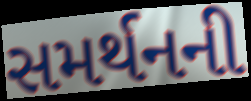
સમર્થનની